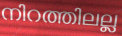
നിറത്തിലല്ല